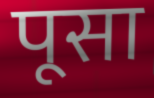
पूसा